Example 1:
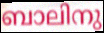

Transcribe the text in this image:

ബാലിനു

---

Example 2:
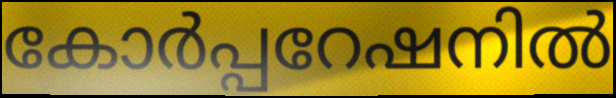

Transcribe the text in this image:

കോർപ്പറേഷനിൽ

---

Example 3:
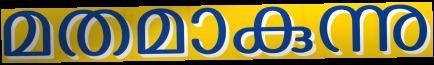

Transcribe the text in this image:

മതമാകുന്നു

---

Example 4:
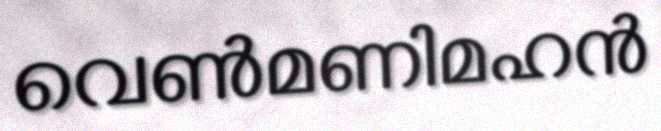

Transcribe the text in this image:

വെൺമണിമഹൻ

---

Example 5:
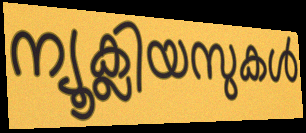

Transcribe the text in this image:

ന്യൂക്ലിയസുകൾ